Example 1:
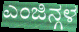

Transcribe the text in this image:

ಎಂಜಿನ್ಗಳ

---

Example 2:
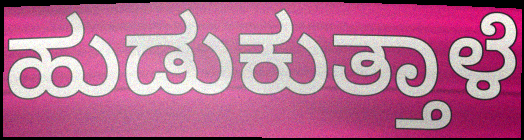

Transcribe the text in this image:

ಹುಡುಕುತ್ತಾಳೆ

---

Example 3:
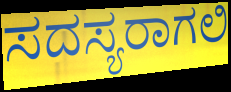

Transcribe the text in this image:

ಸದಸ್ಯರಾಗಲಿ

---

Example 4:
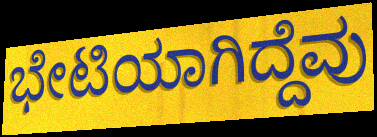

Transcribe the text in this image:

ಭೇಟಿಯಾಗಿದ್ದೆವು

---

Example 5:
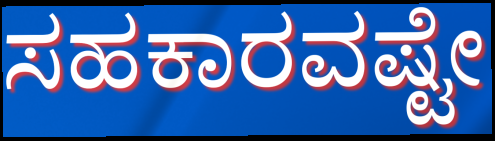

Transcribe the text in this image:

ಸಹಕಾರವಷ್ಟೇ